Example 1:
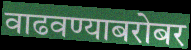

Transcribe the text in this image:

वाढवण्याबरोबर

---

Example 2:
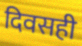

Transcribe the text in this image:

दिवसही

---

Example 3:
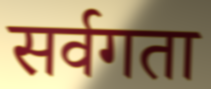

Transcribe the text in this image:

सर्वगता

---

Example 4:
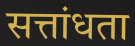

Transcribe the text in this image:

सत्तांधता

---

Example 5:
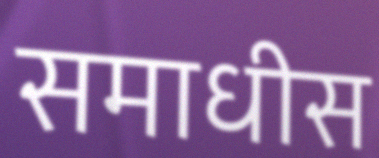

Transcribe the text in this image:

समाधीस